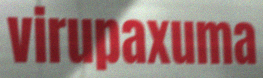
virupaxuma